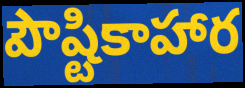
పౌష్టికాహార